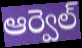
ఆర్వెల్